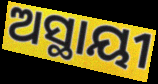
ଅସ୍ଥାୟୀ